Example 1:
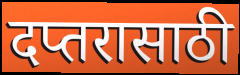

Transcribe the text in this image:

दप्तरासाठी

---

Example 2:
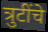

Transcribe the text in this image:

त्रुटींचे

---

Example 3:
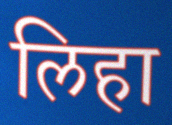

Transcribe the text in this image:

लिहा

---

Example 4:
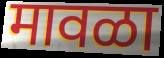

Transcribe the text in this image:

मावळा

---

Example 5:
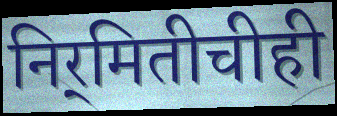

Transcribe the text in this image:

निर्मितीचीही